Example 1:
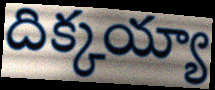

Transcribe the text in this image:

దిక్కయ్యా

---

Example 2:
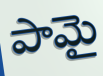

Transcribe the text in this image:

పామై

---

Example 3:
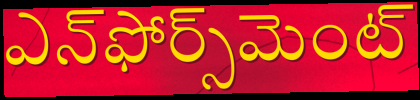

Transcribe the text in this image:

ఎన్‌ఫోర్స్‌మెంట్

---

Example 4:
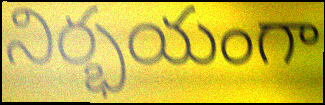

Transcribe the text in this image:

నిర్భయంగా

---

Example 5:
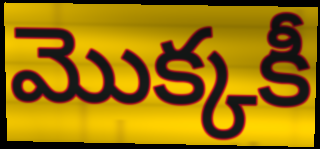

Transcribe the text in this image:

మొక్కకీ